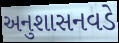
અનુશાસનવડે